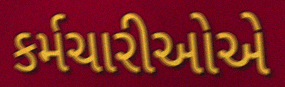
કર્મચારીઓએ